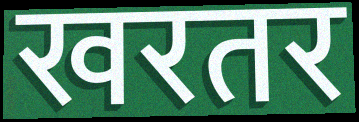
खरतर